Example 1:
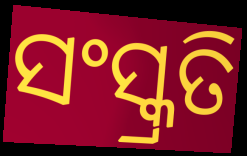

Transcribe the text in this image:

ସଂସ୍କ୍ରତି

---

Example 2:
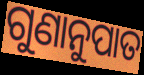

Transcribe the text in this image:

ଗୁଣାନୁପାତ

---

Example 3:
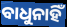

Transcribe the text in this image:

ବାଧୁନାହିଁ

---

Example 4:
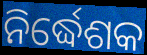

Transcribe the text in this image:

ନିର୍ଦ୍ଧେଶକ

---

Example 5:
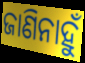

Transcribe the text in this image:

ଜାଣିନାହୁଁ